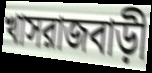
খাসরাজবাড়ী